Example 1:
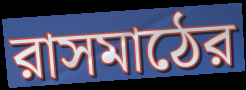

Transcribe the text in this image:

রাসমাঠের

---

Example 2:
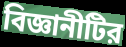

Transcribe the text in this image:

বিজ্ঞানীটির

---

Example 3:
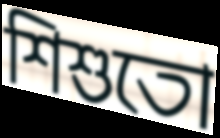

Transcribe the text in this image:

শিশুতো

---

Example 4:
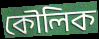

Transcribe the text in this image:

কৌলিক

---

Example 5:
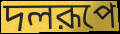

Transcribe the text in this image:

দলরূপে